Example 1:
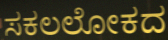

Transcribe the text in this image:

ಸಕಲಲೋಕದ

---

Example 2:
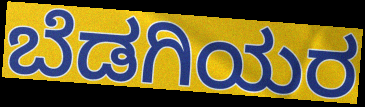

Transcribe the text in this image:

ಬೆಡಗಿಯರ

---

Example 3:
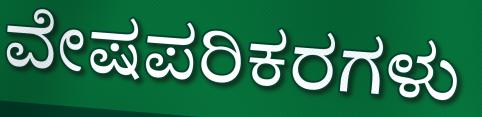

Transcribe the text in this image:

ವೇಷಪರಿಕರಗಳು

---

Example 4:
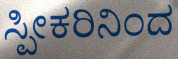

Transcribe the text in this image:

ಸ್ಪೀಕರಿನಿಂದ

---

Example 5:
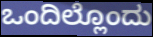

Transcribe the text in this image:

ಒಂದಿಲ್ಲೊಂದು